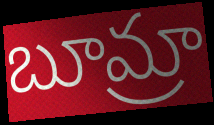
బూమ్రా